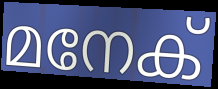
മനേക്